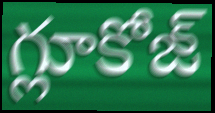
గ్లూకోజ్